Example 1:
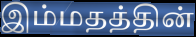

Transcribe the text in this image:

இம்மதத்தின்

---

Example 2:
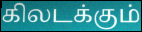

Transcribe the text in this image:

கிலடக்கும்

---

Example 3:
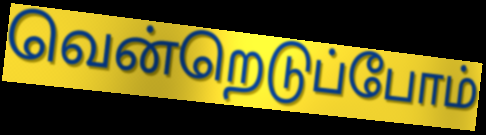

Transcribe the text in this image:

வென்றெடுப்போம்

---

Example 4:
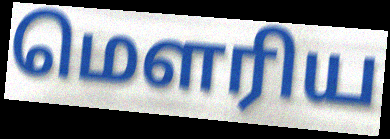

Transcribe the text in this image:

மெளரிய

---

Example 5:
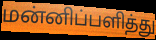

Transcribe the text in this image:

மன்னிப்பளித்து